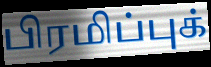
பிரமிப்புக்